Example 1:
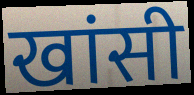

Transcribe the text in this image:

खांसी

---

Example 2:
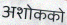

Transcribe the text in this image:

अशोकको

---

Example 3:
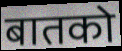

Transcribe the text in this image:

बातको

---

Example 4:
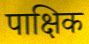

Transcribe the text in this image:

पाक्षिक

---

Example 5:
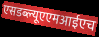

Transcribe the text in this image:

एसडब्ल्यूएएमआईएच